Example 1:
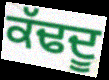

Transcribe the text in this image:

ਕੱਢਦੂ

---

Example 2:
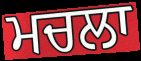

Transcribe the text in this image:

ਮਚਲਾ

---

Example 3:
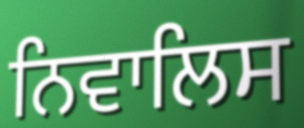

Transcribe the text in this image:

ਨਿਵਾਲਿਸ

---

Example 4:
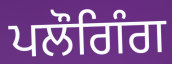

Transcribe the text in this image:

ਪਲੌਗਿੰਗ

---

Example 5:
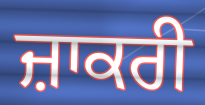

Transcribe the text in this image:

ਜ਼ਾਕਰੀ